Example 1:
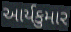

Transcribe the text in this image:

આર્યકુમાર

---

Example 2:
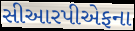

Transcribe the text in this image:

સીઆરપીએફના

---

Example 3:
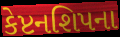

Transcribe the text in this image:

કેપ્ટનશિપના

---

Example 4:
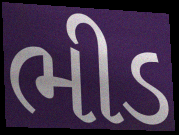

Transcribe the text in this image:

ભીડ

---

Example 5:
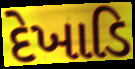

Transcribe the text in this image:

દેખાડિ